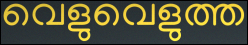
വെളുവെളുത്ത